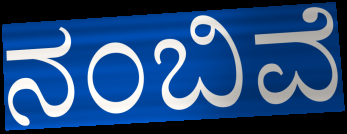
ನಂಬಿವೆ